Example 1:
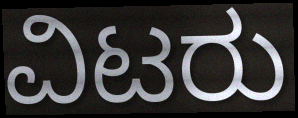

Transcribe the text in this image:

ವಿಟರು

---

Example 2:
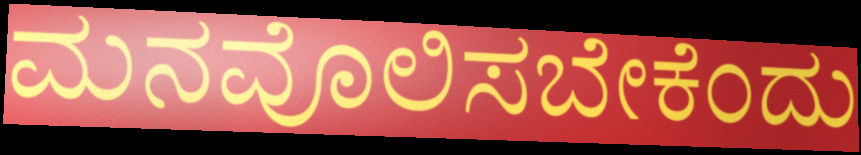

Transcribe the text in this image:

ಮನವೊಲಿಸಬೇಕೆಂದು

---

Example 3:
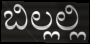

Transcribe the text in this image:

ಬಿಲ್ಲಲ್ಲಿ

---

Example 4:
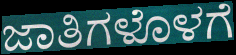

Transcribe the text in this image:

ಜಾತಿಗಳೊಳಗೆ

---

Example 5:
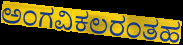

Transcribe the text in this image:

ಅಂಗವಿಕಲರಂತಹ